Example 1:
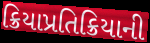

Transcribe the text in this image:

ક્રિયાપ્રતિક્રિયાની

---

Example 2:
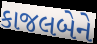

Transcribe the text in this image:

કાજલબેને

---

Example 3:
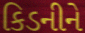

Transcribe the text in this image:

કિડનીને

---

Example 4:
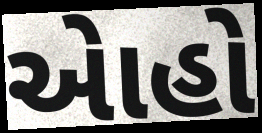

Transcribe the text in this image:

એાહો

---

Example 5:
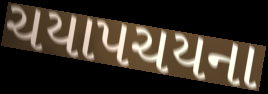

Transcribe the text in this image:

ચયાપચયના